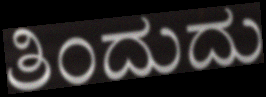
ತಿಂದುದು